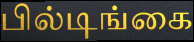
பில்டிங்கை